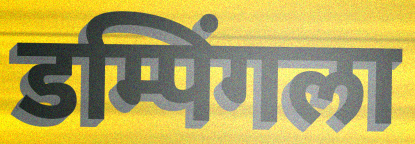
डम्पिंगला